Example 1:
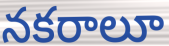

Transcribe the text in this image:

నకరాలూ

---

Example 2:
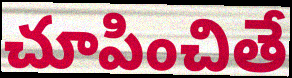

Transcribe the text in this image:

చూపించితే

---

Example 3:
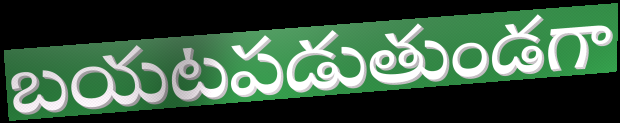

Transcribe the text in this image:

బయటపడుతుండగా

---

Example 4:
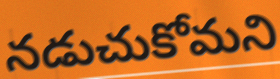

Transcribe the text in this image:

నడుచుకోమని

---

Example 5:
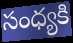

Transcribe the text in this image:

సంధ్యకి